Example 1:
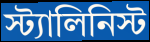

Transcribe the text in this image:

স্ট্যালিনিস্ট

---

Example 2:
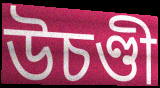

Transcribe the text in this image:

উচণ্ডী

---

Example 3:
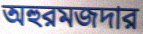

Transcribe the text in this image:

অহুরমজদার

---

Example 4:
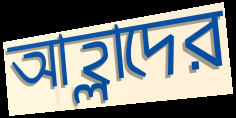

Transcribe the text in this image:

আহ্লাদের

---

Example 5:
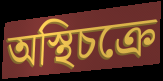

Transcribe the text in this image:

অস্থিচক্রে